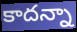
కాదన్నా